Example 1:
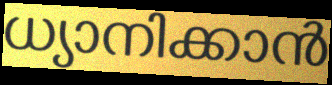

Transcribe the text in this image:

ധ്യാനിക്കാൻ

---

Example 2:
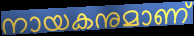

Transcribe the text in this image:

നായകനുമാണ്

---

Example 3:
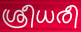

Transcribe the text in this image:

ശ്രീധരീ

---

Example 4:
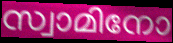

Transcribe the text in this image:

സ്വാമിനോ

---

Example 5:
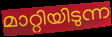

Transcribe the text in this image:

മാറ്റിയിടുന്ന